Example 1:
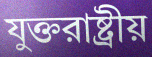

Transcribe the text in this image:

যুক্তরাষ্ট্রীয়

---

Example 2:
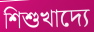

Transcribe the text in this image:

শিশুখাদ্যে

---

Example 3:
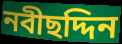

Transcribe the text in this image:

নবীছদ্দিন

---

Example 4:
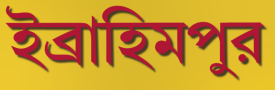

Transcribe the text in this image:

ইব্রাহিমপুর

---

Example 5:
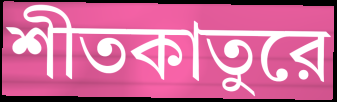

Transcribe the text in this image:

শীতকাতুরে